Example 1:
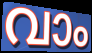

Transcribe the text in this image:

വാം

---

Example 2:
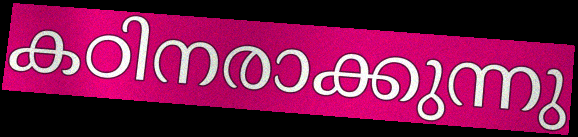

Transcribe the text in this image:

കഠിനരാക്കുന്നു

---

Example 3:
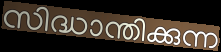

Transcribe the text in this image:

സിദ്ധാന്തിക്കുന്ന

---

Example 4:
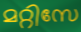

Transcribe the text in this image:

മറ്റിസേ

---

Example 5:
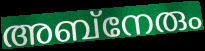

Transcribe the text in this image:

അബ്നേരും